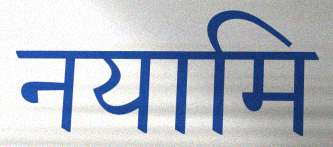
नयामि